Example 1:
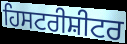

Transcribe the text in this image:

ਹਿਸਟਰੀਸ਼ੀਟਰ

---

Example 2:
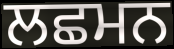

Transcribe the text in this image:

ਲਛਮਨ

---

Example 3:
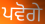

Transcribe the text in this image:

ਪਵੋਗੇ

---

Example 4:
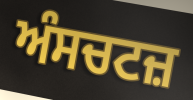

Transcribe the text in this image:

ਅੰਸਚਟਜ਼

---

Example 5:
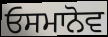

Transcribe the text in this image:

ਓਸਮਾਨੋਵ